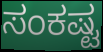
ಸಂಕಷ್ಟ